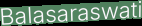
Balasaraswati